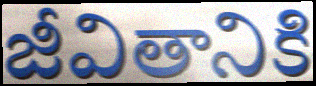
జీవితానికి